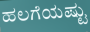
ಹಲಗೆಯಷ್ಟು